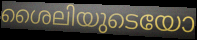
ശൈലിയുടെയോ